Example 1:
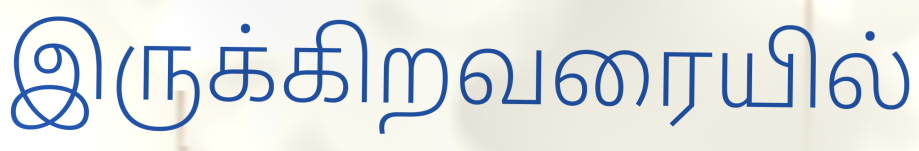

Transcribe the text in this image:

இருக்கிறவரையில்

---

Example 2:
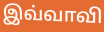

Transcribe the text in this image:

இவ்வாவி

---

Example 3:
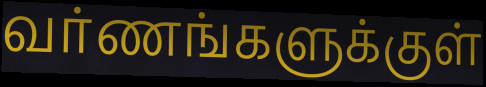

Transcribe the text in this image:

வர்ணங்களுக்குள்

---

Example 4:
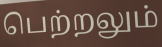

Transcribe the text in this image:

பெற்றலும்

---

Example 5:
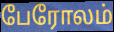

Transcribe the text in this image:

பேரோலம்